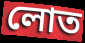
লোত